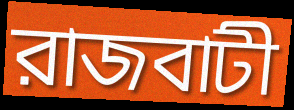
রাজবাটী